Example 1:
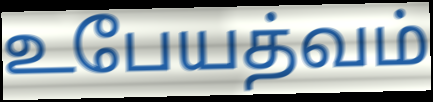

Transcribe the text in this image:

உபேயத்வம்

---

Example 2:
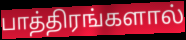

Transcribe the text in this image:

பாத்திரங்களால்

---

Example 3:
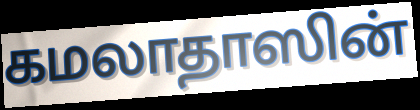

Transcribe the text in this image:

கமலாதாஸின்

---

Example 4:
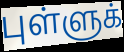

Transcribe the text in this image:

புள்ளுக்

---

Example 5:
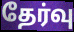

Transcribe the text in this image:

தேர்வு